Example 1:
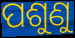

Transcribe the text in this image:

ପଶୁଣୁ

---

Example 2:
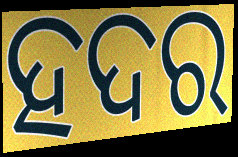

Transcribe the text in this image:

ହଦର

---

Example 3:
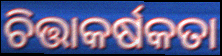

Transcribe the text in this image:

ଚିତ୍ତାକର୍ଷକତା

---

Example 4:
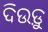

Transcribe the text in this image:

ଦିଉଡ଼ୁ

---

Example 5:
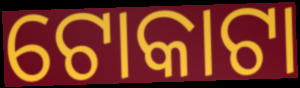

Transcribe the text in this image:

ଟୋକାଟା